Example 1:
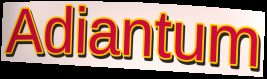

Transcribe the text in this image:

Adiantum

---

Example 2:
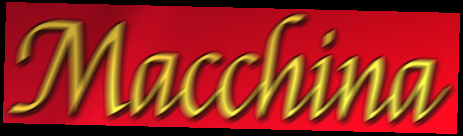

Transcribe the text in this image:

Macchina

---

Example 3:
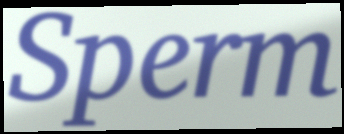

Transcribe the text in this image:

Sperm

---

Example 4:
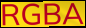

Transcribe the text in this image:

RGBA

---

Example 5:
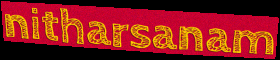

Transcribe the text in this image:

nitharsanam